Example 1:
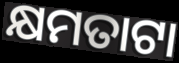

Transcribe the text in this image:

କ୍ଷମତାଟା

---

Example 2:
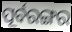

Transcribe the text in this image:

ପୂର୍ବରଙ୍ଗର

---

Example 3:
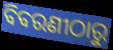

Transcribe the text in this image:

ବିବରଣୀଠାରୁ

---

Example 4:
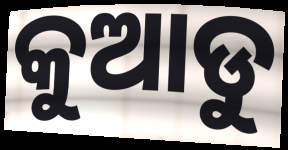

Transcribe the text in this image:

କୁଆଡୁ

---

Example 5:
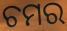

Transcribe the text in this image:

ଚମର